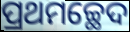
ପ୍ରଥମଚ୍ଛେଦ